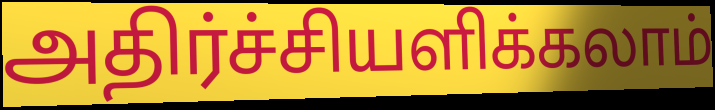
அதிர்ச்சியளிக்கலாம்